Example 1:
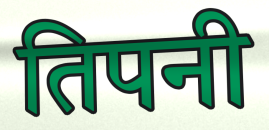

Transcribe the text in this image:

तिपनी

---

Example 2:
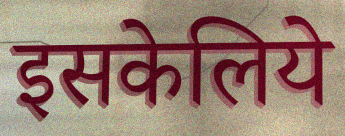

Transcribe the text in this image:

इसकेलिये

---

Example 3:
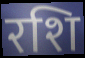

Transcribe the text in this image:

रशि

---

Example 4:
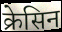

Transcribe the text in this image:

क्रेसिन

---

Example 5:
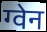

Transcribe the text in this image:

ग्वेन